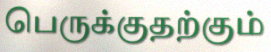
பெருக்குதற்கும்